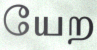
யேற